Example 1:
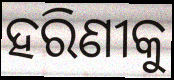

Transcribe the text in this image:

ହରିଣୀକୁ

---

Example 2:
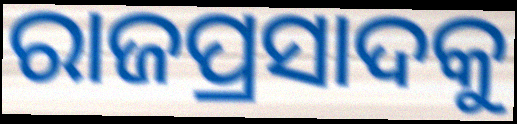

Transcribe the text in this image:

ରାଜପ୍ରସାଦକୁ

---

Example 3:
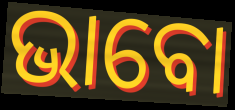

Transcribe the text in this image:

ଭାବୋ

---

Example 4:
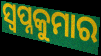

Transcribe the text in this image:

ସ୍ଵପ୍ନକୁମାର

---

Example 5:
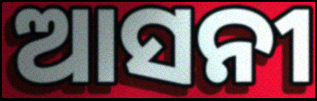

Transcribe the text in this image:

ଆସନୀ